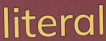
literal